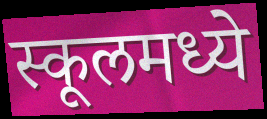
स्कूलमध्ये